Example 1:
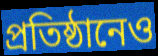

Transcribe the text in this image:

প্রতিষ্ঠানেও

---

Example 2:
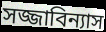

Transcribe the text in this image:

সজ্জাবিন্যাস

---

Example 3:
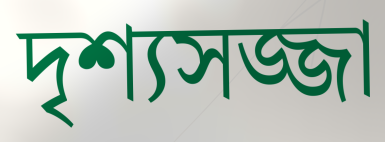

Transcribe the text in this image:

দৃশ্যসজ্জা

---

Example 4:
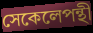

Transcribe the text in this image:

সেকেলেপন্থী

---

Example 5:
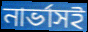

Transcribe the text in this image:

নার্ভাসই